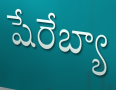
షేరేబ్యా